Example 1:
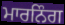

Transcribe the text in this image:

ਮਾਰਨਿੰਗ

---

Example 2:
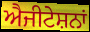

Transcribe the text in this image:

ਐਜੀਟੇਸ਼ਨਾਂ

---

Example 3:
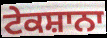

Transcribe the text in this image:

ਟੇਕਸ਼ਾਨਾ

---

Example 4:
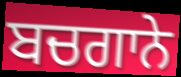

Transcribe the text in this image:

ਬਚਗਾਨੇ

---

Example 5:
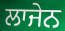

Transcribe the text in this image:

ਲਾਜੇਨ